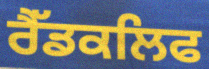
ਰੈੱਡਕਲਿਫ